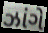
ઝાંગે